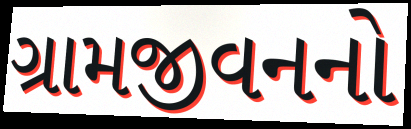
ગ્રામજીવનનો